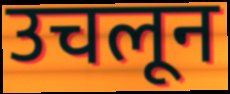
उचलून